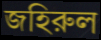
জহিরুল